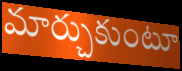
మార్చుకుంటూ